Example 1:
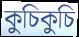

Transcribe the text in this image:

কুচিকুচি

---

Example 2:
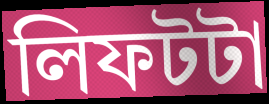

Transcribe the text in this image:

লিফটটা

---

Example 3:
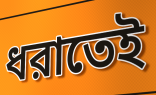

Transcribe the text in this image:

ধরাতেই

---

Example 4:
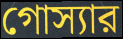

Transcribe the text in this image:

গোস্যার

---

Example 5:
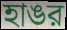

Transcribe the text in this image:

হাঙর